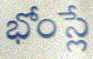
భోంస్లే